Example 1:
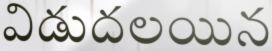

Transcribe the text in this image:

విడుదలయిన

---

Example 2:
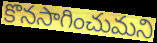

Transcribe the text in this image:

కొనసాగించుమని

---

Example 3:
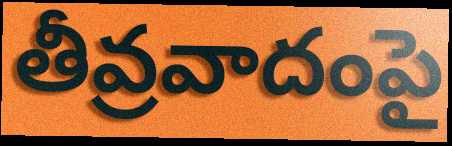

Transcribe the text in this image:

తీవ్రవాదంపై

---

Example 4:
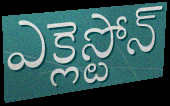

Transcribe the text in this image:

ఎక్లెస్టోన్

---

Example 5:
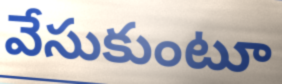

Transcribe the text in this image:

వేసుకుంటూ